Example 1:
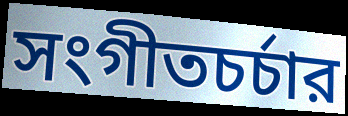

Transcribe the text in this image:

সংগীতচর্চার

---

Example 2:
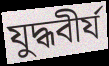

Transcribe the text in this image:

যুদ্ধবীর্য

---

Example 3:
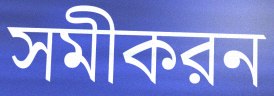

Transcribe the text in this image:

সমীকরন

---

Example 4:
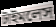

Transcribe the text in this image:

টাইমলেস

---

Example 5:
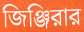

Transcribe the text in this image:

জিঞ্জিরার